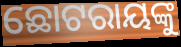
ଛୋଟରାୟଙ୍କୁ